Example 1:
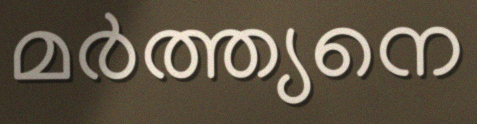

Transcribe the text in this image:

മർത്ത്യനെ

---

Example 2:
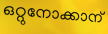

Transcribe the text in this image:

ഒറ്റുനോക്കാന്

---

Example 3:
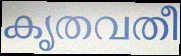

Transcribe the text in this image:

കൃതവതീ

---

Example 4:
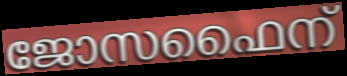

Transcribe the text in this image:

ജോസഫൈന്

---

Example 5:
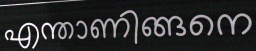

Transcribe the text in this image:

എന്താണിങ്ങനെ